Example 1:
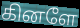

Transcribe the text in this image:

கினளே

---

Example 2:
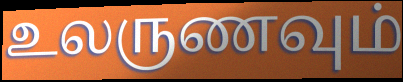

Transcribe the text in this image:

உலருணவும்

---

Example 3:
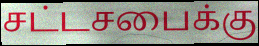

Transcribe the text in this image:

சட்டசபைக்கு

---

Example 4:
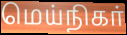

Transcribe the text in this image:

மெய்நிகர்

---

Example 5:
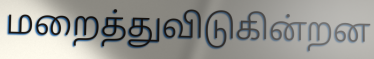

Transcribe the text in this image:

மறைத்துவிடுகின்றன